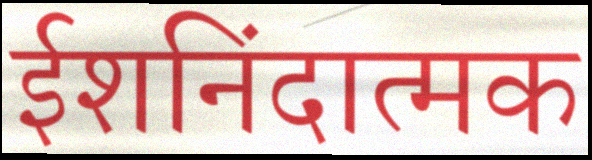
ईशनिंदात्मक